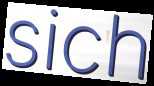
sich